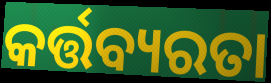
କର୍ତ୍ତବ୍ୟରତା